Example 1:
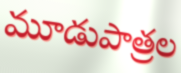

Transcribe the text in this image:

మూడుపాత్రల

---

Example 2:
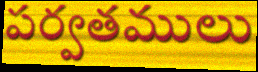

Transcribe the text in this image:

పర్వతములు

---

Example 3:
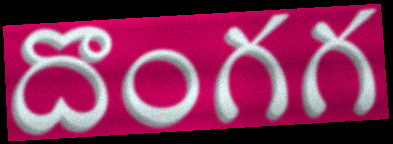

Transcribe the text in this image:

దొంగగ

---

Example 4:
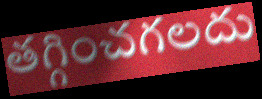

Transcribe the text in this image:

తగ్గించగలదు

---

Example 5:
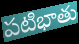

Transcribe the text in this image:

పటిభాతు